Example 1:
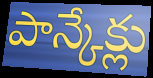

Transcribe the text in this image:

పాన్కేక్లు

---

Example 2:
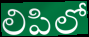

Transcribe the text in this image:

లిపిలో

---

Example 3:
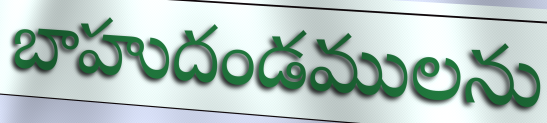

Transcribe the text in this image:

బాహుదండములను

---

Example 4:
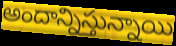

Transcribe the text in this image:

అందాన్నిస్తున్నాయి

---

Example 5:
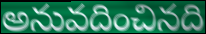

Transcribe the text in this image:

అనువదించినది